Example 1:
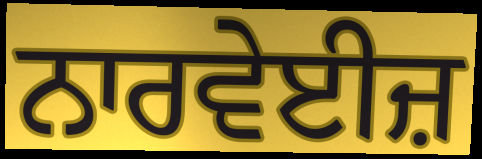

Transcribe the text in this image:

ਨਾਰਵੇਈਜ਼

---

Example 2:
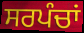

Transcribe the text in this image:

ਸਰਪੰਚਾਂ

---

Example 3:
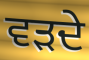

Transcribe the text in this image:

ਵੜਦੇ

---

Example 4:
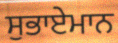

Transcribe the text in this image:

ਸੁਭਾਏਮਾਨ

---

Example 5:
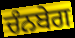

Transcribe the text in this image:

ਚੰਨਬੇਗ